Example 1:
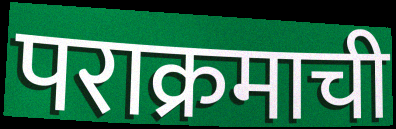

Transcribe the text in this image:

पराक्रमाची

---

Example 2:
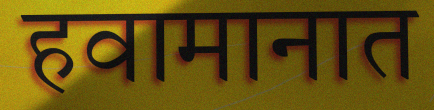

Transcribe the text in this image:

हवामानात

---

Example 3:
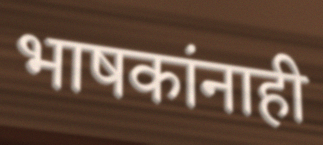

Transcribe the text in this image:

भाषकांनाही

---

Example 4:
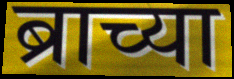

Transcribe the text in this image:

ब्राच्या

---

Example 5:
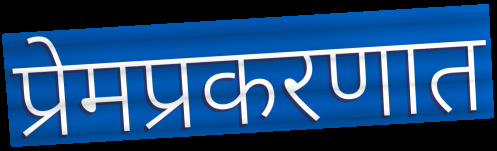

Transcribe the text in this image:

प्रेमप्रकरणात